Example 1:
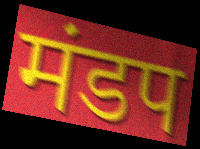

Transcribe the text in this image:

मंडप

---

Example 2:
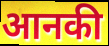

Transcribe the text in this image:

आनकी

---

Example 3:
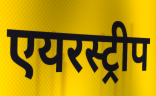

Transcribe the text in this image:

एयरस्ट्रीप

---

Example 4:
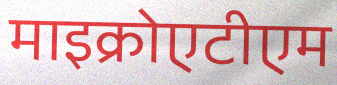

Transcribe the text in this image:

माइक्रोएटीएम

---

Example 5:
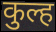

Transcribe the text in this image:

कुल्ह